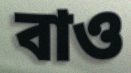
বাও